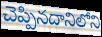
చెప్పినదానిలోని